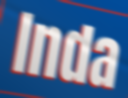
Inda